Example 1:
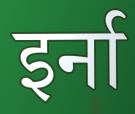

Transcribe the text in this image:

इर्ना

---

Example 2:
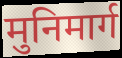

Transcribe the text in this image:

मुनिमार्ग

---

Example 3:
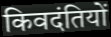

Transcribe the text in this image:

किवदंतियों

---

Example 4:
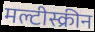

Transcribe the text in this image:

मल्टीस्क्रीन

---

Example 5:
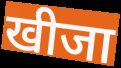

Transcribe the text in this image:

खीजा